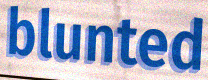
blunted